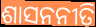
ଶାସନନୀତି